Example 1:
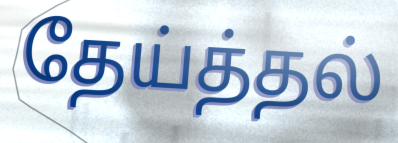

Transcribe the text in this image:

தேய்த்தல்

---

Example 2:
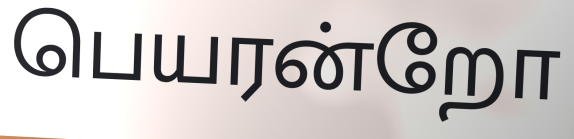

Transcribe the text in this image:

பெயரன்றோ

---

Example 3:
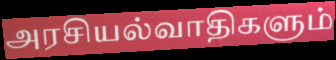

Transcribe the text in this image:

அரசியல்வாதிகளும்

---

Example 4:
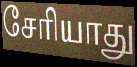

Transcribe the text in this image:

சேரியாது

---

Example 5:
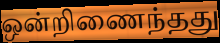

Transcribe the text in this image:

ஒன்றிணைந்தது